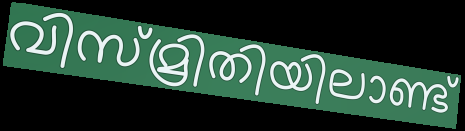
വിസ്മ്രിതിയിലാണ്ട്